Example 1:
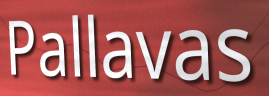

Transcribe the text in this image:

Pallavas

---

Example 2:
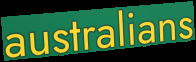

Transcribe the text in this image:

australians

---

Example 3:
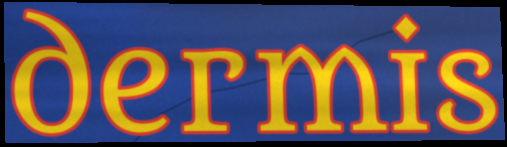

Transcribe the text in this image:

dermis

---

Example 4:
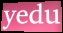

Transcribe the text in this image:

yedu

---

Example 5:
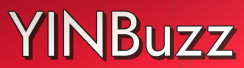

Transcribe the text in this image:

YINBuzz